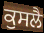
ਕੁਸਲੈ